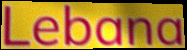
Lebana